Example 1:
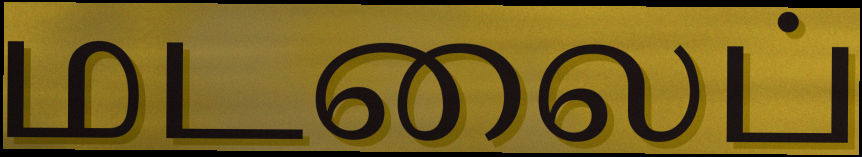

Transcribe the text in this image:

மடலைப்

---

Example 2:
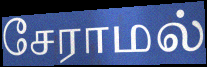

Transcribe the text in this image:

சேராமல்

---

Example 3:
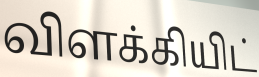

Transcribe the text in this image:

விளக்கியிட்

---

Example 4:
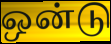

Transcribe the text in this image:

ஒன்டு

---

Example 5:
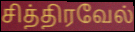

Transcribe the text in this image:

சித்திரவேல்